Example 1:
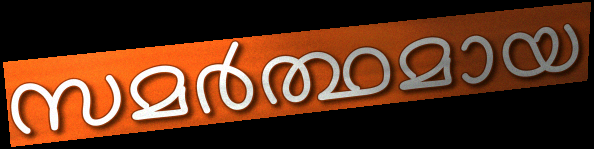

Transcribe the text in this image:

സമർത്ഥമായ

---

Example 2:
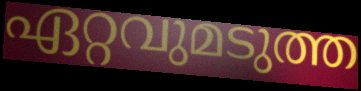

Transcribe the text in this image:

ഏറ്റവുമടുത്ത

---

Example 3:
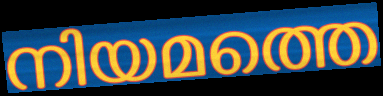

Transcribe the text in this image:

നിയമത്തെ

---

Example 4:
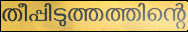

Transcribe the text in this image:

തീപ്പിടുത്തത്തിന്റെ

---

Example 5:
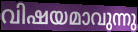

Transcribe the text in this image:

വിഷയമാവുന്നു